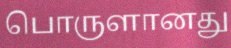
பொருளானது